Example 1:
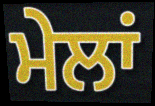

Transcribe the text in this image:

ਮੇਲਾਂ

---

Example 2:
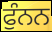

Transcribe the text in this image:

ਫੁੰਨਨ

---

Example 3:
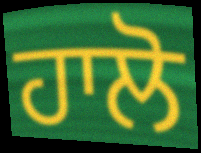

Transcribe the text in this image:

ਹਾਲੋ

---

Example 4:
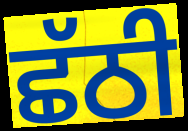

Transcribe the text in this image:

ਛੱਠੀ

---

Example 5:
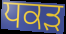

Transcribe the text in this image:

ਧਕੜ